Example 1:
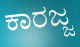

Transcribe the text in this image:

ಕಾರಜ್ಜ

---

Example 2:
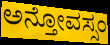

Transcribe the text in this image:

ಅನ್ತೋವಸ್ಸಂ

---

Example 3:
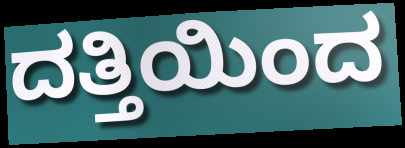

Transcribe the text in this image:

ದತ್ತಿಯಿಂದ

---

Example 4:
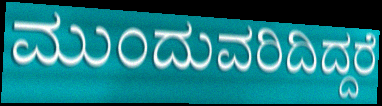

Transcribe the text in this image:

ಮುಂದುವರಿದಿದ್ದರೆ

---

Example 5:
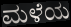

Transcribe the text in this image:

ಮಳೆಯ